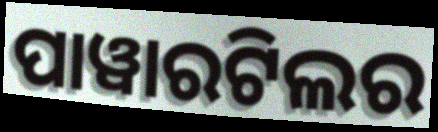
ପାୱାରଟିଲର